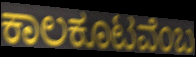
ಕಾಲಕೂಟವೆಂಬ